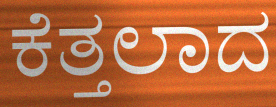
ಕೆತ್ತಲಾದ